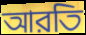
আরতি